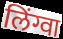
लिंग्वा